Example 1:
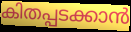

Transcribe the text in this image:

കിതപ്പടക്കാൻ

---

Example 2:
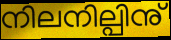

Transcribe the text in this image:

നിലനില്പിനു്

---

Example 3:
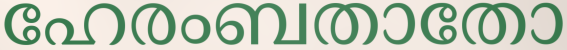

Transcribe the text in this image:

ഹേരംബതാതോ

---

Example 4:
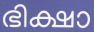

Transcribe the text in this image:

ഭിക്ഷാ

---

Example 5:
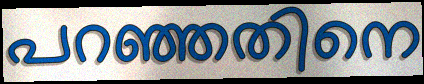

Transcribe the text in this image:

പറഞ്ഞതിനെ